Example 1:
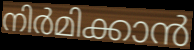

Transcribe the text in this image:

നിർമിക്കാൻ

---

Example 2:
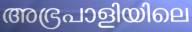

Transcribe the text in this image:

അഭ്രപാളിയിലെ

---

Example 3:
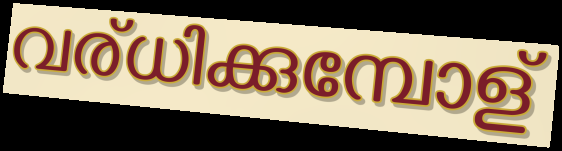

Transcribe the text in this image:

വര്ധിക്കുമ്പോള്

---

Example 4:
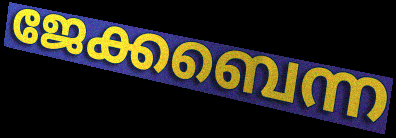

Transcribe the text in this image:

ജേക്കബെന്ന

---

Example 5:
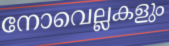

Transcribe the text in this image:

നോവെല്ലകളും